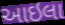
આઇલા